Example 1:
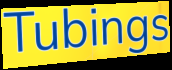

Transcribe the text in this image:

Tubings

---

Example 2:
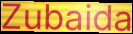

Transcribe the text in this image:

Zubaida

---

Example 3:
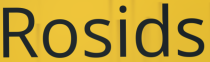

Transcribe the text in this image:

Rosids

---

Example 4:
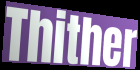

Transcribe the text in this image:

Thither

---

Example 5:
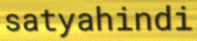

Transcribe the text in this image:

satyahindi